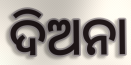
ଦିଅନା